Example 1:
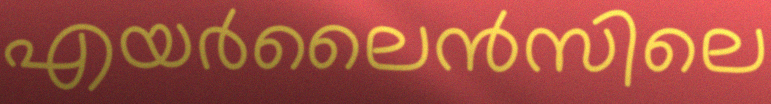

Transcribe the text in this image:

എയർലൈൻസിലെ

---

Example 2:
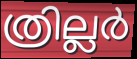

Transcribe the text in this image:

ത്രില്ലർ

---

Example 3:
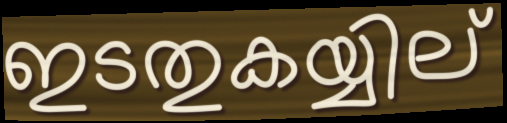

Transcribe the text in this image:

ഇടതുകയ്യില്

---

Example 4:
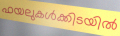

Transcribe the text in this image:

ഫയലുകൾക്കിടയിൽ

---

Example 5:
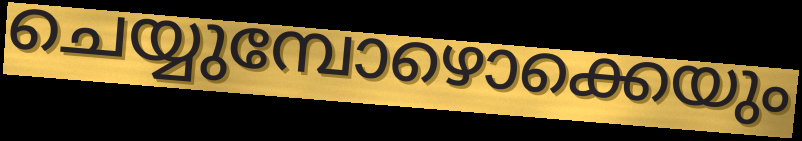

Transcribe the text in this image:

ചെയ്യുമ്പോഴൊക്കെയും